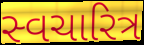
સ્વચારિત્ર